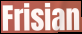
Frisian